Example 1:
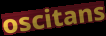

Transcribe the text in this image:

oscitans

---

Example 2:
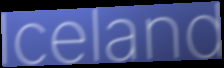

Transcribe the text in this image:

Iceland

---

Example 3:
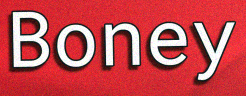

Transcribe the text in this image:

Boney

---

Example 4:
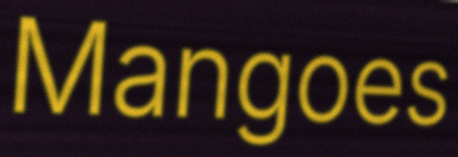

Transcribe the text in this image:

Mangoes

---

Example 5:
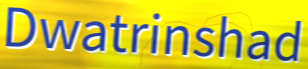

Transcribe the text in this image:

Dwatrinshad